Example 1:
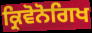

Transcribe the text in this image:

ਕ੍ਰਿਵੋਨੋਗਿਖ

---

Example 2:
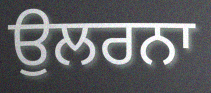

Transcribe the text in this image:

ਉਲਰਨਾ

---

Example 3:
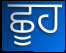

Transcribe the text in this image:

ਛੂਹ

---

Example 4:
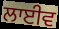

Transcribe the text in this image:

ਲਾਈਵ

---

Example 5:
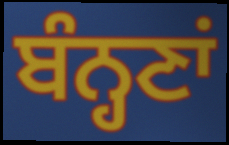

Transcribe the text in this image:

ਬੰਨ੍ਹਣਾਂ